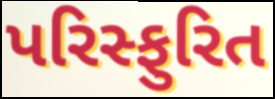
પરિસ્ફુરિત